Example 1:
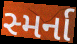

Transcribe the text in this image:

સ્મર્ના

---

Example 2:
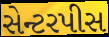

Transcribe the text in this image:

સેન્ટરપીસ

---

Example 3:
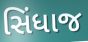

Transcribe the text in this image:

સિંધાજ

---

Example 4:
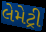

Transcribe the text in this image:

લેમેટ્રી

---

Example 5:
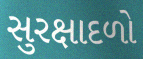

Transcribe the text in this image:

સુરક્ષાદળો